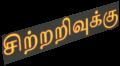
சிற்றறிவுக்கு